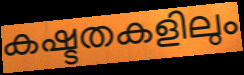
കഷ്ടതകളിലും